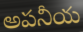
అపనీయ